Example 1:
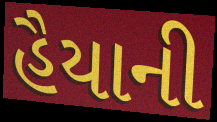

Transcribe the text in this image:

હૈયાની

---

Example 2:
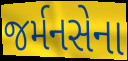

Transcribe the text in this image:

જર્મનસેના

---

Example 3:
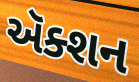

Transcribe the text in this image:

ઍક્શન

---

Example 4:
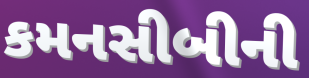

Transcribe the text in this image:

કમનસીબીની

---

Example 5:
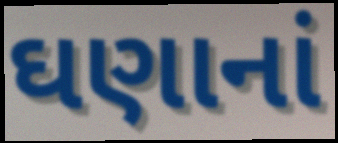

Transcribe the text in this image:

ઘણાનાં